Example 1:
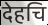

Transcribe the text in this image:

देहचि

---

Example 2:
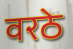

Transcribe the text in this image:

वरठे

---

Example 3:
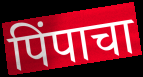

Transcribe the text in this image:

पिंपाचा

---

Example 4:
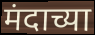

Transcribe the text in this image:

मंदाच्या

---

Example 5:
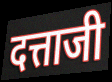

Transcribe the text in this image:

दत्ताजी